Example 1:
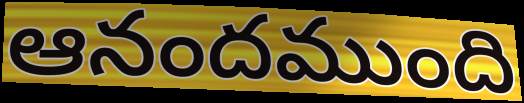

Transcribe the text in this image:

ఆనందముంది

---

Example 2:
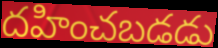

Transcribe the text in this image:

దహించబడడు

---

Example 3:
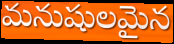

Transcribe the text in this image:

మనుషులమైన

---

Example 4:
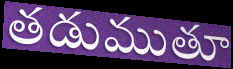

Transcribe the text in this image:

తడుముతూ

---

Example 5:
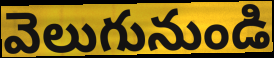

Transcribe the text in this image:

వెలుగునుండి